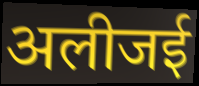
अलीजई